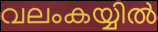
വലംകയ്യിൽ